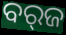
ବର୍‌ଜ